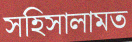
সহিসালামত